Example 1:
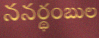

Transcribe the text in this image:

ననర్థంబుల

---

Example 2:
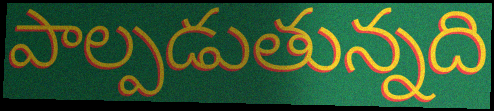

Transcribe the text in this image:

పాల్పడుతున్నది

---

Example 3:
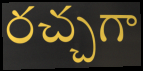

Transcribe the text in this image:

రచ్చగా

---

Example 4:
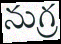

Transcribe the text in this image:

నుగ్ర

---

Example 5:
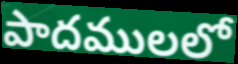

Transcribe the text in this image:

పాదములలో